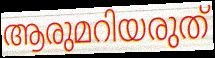
ആരുമറിയരുത്